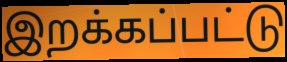
இறக்கப்பட்டு